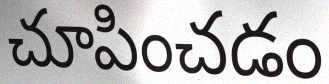
చూపించడం